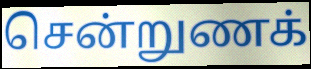
சென்றுணக்